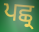
ਪਛ੍ਰ